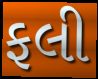
ફલી